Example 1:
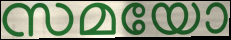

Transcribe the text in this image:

സമയോ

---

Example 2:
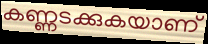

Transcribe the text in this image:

കണ്ണടക്കുകയാണ്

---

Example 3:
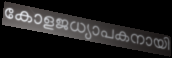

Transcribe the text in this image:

കോളജധ്യാപകനായി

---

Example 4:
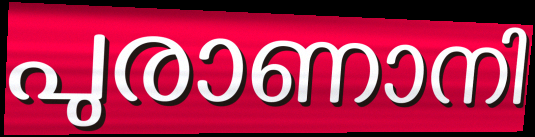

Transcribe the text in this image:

പുരാണാനി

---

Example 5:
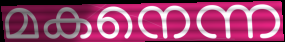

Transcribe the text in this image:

മകനെന്ന